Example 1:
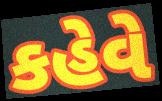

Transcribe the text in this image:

કહેવે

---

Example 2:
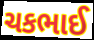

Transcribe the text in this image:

ચકભાઈ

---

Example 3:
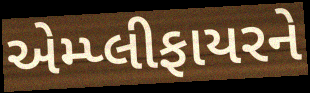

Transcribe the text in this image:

એમ્પ્લીફાયરને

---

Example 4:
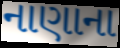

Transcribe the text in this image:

નાણાના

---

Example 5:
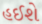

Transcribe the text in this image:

હઈશે